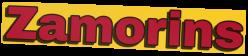
Zamorins